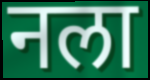
नला